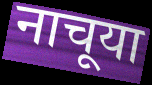
नाचूया